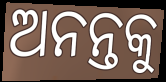
ଅନନ୍ତକୁ